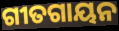
ଗୀତଗାୟନ